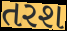
તરશ